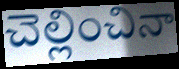
చెల్లించినా